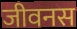
जीवनस